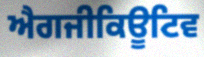
ਐਗਜੀਕਿਊਟਿਵ